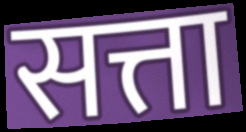
सत्ता